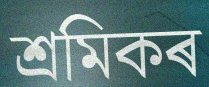
শ্ৰমিকৰ